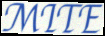
MITE